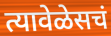
त्यावेळेसचं